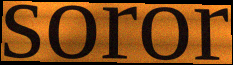
soror